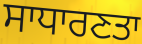
ਸਾਧਾਰਣਤਾ